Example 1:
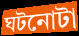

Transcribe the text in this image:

ঘটনোটা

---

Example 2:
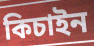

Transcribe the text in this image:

কিচাইন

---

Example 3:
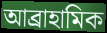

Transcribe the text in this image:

আব্রাহামিক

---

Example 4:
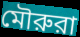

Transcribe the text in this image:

মৌরুরা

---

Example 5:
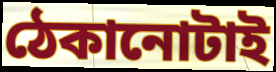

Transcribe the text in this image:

ঠেকানোটাই